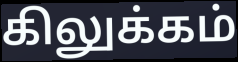
கிலுக்கம்